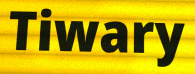
Tiwary